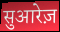
सुआरेज़